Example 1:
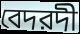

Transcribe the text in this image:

বেদরদী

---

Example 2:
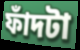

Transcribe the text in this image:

ফাঁদটা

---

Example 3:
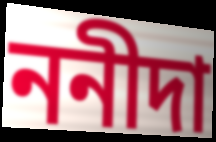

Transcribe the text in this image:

ননীদা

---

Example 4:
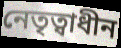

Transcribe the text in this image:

নেতৃত্বাধীন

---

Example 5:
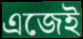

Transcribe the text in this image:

এজেই